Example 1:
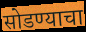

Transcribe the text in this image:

सोडण्याचा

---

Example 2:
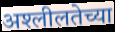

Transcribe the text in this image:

अश्‍लीलतेच्या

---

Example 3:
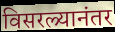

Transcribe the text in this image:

विसरल्यानंतर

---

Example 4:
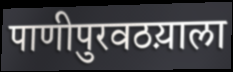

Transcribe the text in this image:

पाणीपुरवठय़ाला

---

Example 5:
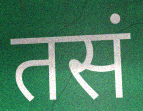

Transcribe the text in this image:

तसं